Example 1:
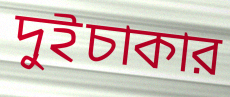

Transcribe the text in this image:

দুইচাকার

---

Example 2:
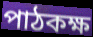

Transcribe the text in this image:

পাঠকক্ষ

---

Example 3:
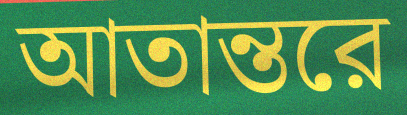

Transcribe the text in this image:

আতান্তরে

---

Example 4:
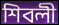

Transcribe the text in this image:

শিবলী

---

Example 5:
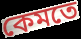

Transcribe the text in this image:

কেমতে